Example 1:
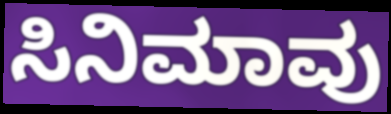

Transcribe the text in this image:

ಸಿನಿಮಾವು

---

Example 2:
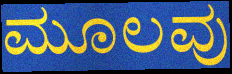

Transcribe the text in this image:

ಮೂಲವು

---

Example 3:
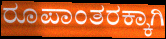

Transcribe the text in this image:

ರೂಪಾಂತರಕ್ಕಾಗಿ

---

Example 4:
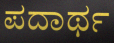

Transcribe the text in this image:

ಪದಾರ್ಥ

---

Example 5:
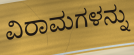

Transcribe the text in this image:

ವಿರಾಮಗಳನ್ನು